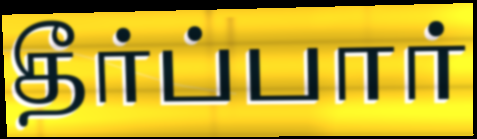
தீர்ப்பார்